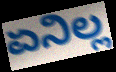
ಏನಿಲ್ಲ